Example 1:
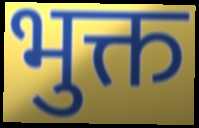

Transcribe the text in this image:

भुक्त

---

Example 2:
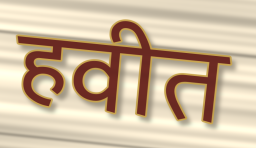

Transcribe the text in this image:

हवीत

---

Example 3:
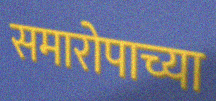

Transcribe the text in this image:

समारोपाच्या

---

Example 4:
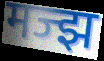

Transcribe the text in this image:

मज्झ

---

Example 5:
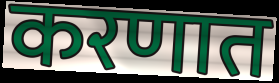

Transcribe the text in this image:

करणात